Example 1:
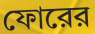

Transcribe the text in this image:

ফোরের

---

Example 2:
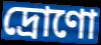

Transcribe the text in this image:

দ্রোণো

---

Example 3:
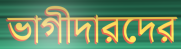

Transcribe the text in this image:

ভাগীদারদের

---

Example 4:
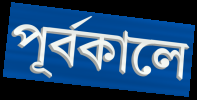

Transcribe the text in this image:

পূর্বকালে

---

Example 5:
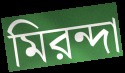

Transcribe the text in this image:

মিরন্দা